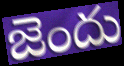
జెందు